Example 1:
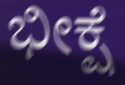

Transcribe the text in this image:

ಭೀಕ್ಷೆ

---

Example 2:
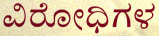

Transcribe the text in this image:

ವಿರೋಧಿಗಳ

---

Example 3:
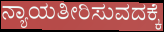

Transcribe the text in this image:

ನ್ಯಾಯತೀರಿಸುವದಕ್ಕೆ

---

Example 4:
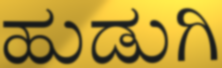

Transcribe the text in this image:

ಹುಡುಗಿ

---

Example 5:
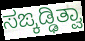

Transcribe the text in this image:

ಸಙ್ಕಡ್ಢಿತ್ವಾ